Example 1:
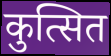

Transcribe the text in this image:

कुत्सित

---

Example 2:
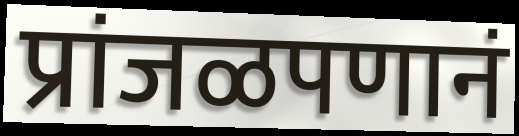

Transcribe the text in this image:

प्रांजळपणानं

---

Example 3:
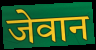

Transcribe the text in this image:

जेवान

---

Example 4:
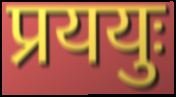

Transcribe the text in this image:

प्रययुः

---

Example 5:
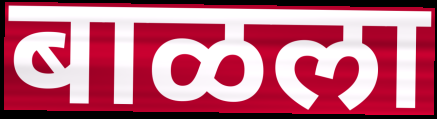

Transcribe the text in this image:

बाळला